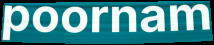
poornam